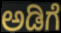
ಅಡಿಗೆ